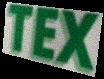
TEX